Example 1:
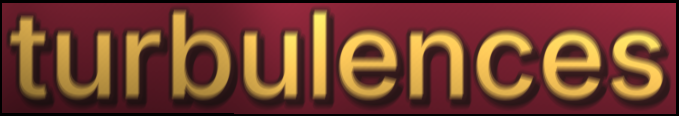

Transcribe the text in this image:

turbulences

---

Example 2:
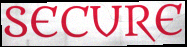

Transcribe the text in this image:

SECURE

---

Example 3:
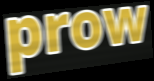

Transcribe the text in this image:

prow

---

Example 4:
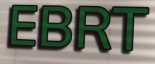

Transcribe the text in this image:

EBRT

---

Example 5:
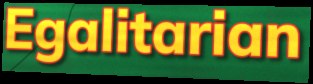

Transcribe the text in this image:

Egalitarian